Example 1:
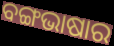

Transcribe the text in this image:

ବଙ୍ଗଭାଷାର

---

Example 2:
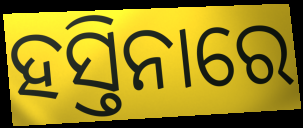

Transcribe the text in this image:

ହସ୍ତିନାରେ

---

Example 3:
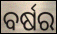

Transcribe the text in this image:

ବର୍ଷର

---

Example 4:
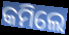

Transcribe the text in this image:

କମିଲେ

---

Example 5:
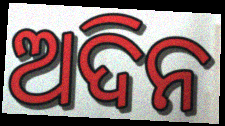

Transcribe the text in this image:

ଅଦିନ